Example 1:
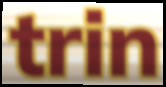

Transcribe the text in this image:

trin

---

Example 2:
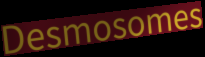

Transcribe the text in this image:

Desmosomes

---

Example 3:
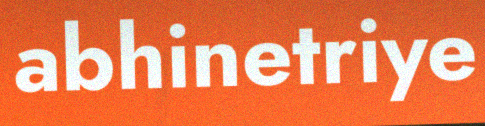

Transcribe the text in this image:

abhinetriye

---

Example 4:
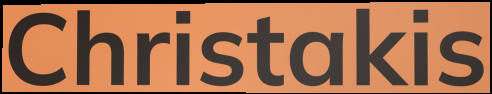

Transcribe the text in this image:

Christakis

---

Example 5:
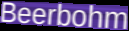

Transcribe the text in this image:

Beerbohm